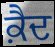
ਕ਼ੈਦ